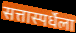
सत्तास्पर्धेला